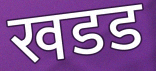
खडड